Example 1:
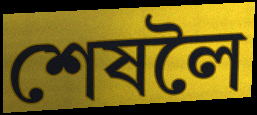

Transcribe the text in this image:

শেষলৈ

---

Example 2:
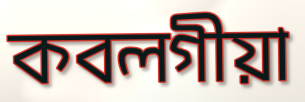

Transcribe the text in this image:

কবলগীয়া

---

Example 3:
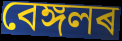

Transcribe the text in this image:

বেঙ্গলৰ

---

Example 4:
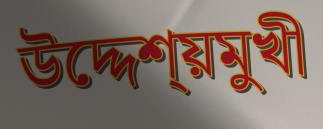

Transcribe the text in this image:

উদ্দেশ্য়মুখী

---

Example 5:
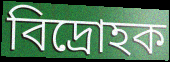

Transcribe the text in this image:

বিদ্ৰোহক